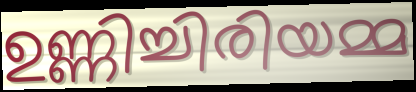
ഉണ്ണിച്ചിരിയമ്മ